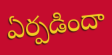
ఏర్పడిందా